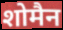
शोमैन